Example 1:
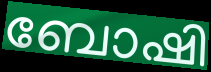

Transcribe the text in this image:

ബോഷി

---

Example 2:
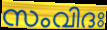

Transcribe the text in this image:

സംവിദഃ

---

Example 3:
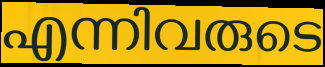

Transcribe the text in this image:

എന്നിവരുടെ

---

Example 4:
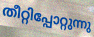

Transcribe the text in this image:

തീറ്റിപ്പോറ്റുന്നു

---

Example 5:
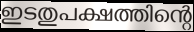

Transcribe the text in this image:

ഇടതുപക്ഷത്തിന്റെ